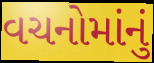
વચનોમાંનું